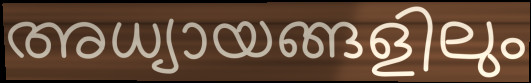
അധ്യായങ്ങളിലും